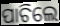
ପାଚିଲେ